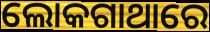
ଲୋକଗାଥାରେ